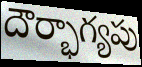
దౌర్భాగ్యపు